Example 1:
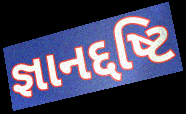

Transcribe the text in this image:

જ્ઞાનદ્દષ્ટિ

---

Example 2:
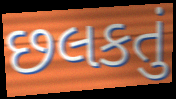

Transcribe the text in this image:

છલકતું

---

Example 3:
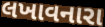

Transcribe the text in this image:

લખાવનારા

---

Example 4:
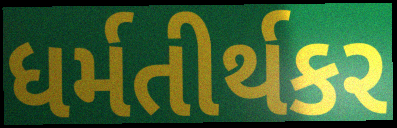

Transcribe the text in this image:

ધર્મતીર્થકર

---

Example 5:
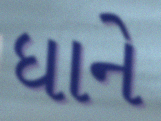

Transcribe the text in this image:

ધાને